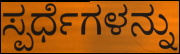
ಸ್ಪರ್ಧೆಗಳನ್ನು